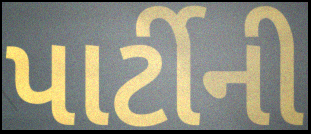
પાર્ટીની